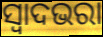
ସ୍ଵାଦଭରା